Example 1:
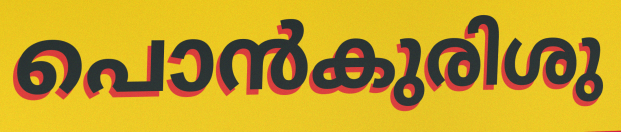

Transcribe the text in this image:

പൊൻകുരിശു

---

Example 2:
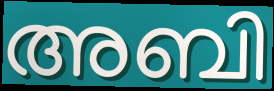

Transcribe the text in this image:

അബി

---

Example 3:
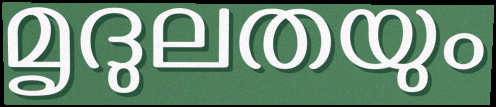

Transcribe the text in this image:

മൃദുലതയും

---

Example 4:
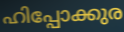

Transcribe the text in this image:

ഹിപ്പോക്കുര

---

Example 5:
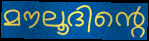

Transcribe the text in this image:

മൗലൂദിന്റെ